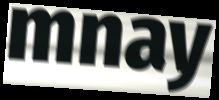
mnay